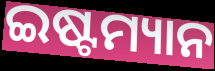
ଇଷ୍ଟମ୍ୟାନ